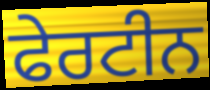
ਫੇਰਟੀਨ